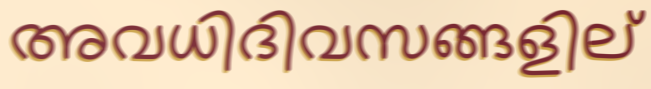
അവധിദിവസങ്ങളില്